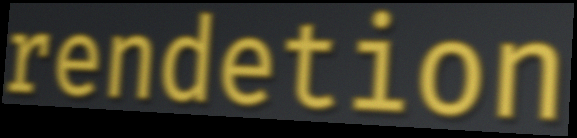
rendetion